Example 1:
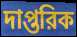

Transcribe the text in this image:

দাপ্তরিক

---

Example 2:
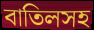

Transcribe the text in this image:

বাতিলসহ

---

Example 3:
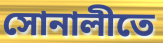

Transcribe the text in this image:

সোনালীতে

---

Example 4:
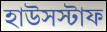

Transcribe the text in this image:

হাউসস্টাফ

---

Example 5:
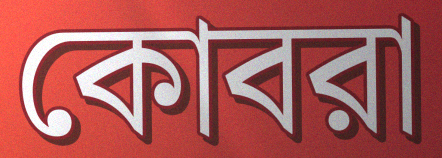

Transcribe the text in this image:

কোবরা